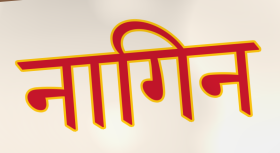
नागिन